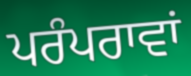
ਪਰੰਪਰਾਵਾਂ